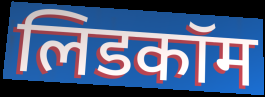
लिडकॉम